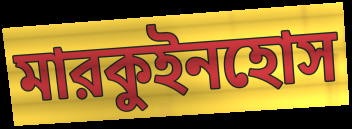
মারকুইনহোস